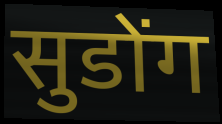
सुडोंग